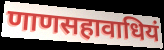
णाणसहावाधियं